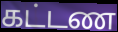
கட்டண